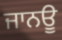
ਜਾਨਊ